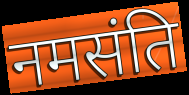
नमसंति